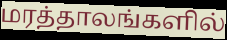
மரத்தாலங்களில்